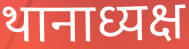
थानाध्यक्ष